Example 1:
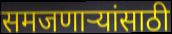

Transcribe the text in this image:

समजणाऱ्यांसाठी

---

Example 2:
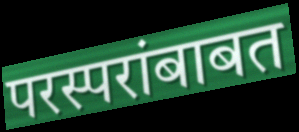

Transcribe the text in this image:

परस्परांबाबत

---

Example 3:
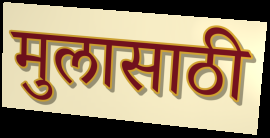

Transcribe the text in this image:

मुलासाठी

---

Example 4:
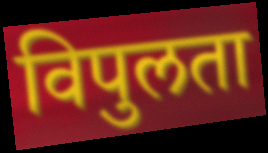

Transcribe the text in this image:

विपुलता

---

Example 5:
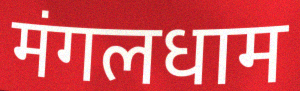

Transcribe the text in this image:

मंगलधाम